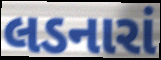
લડનારાં